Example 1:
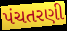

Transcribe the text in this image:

પંચતરણી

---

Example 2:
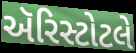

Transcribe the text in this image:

ઍરિસ્ટોટલે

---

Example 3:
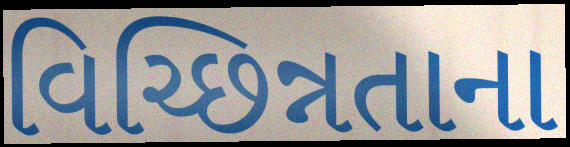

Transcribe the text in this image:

વિચ્છિન્નતાના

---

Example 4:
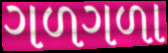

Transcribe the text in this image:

ગળગળા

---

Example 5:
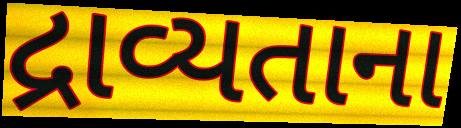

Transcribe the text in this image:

દ્રાવ્યતાના